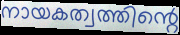
നായകത്വത്തിന്റെ